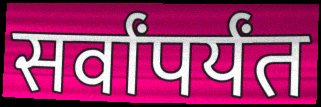
सर्वांपर्यंत